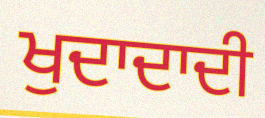
ਖੁਦਾਦਾਦੀ